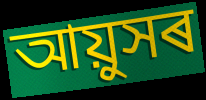
আয়ুসৰ